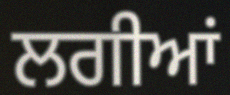
ਲਗੀਆਂ